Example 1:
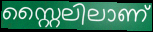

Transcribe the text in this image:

സ്റ്റൈലിലാണ്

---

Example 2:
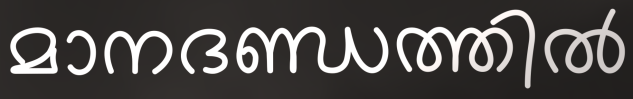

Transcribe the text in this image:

മാനദണ്ഡത്തിൽ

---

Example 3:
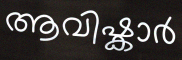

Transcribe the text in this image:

ആവിഷ്കാർ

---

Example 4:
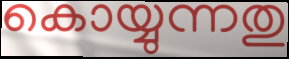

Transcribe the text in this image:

കൊയ്യുന്നതു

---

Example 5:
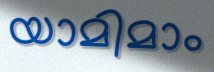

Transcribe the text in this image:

യാമിമാം